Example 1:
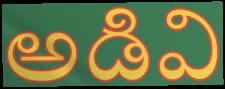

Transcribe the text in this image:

అడివి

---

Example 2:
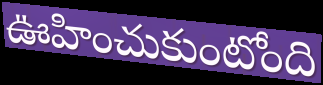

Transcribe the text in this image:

ఊహించుకుంటోంది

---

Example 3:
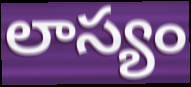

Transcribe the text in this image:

లాస్యం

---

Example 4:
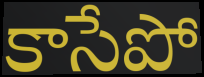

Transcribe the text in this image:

కాసేపో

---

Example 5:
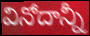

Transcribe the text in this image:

వినోదాన్నీ